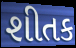
શીતક